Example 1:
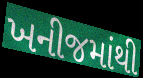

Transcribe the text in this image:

ખનીજમાંથી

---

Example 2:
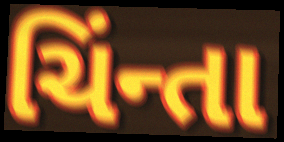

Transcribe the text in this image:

ચિંન્તા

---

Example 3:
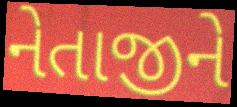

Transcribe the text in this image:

નેતાજીને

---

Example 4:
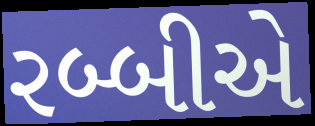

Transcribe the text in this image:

રબ્બીએ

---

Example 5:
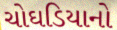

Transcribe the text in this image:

ચોઘડિયાનો